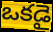
ఒకడై